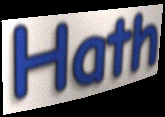
Hath